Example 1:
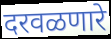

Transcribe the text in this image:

दरवळणारे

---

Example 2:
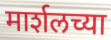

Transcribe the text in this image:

मार्शलच्या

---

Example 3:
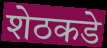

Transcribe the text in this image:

शेठकडे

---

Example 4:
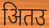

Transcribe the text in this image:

अितउ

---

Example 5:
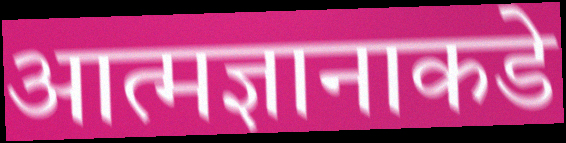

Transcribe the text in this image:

आत्मज्ञानाकडे